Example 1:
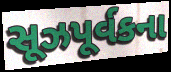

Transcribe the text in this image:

સૂઝપૂર્વકના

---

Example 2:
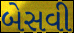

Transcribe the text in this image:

બેસવી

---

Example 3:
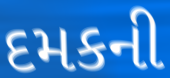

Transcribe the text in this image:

દમકની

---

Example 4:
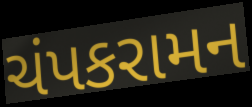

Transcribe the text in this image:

ચંપકરામન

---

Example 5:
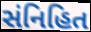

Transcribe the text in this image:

સંનિહિત